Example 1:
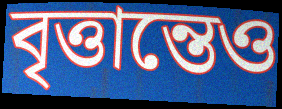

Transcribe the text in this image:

বৃত্তান্তেও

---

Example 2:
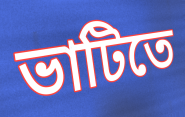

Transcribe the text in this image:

ভাটিতে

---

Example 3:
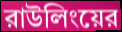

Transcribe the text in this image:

রাউলিংয়ের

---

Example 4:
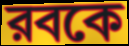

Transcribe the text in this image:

রবকে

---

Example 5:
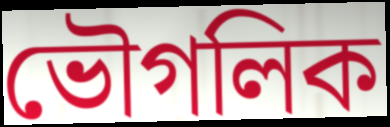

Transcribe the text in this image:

ভৌগলিক